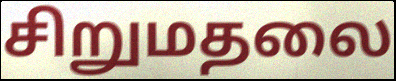
சிறுமதலை